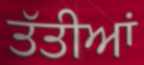
ਤੱਤੀਆਂ